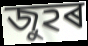
জুহৰ